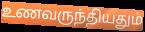
உணவருந்தியதும்